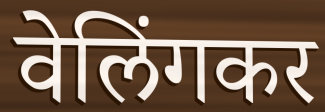
वेलिंगकर